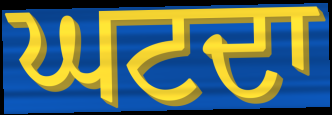
ਘਟਦਾ